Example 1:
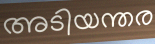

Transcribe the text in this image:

അടിയന്തര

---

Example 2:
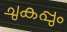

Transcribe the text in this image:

ചുകപ്പും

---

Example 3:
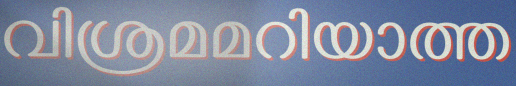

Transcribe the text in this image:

വിശ്രമമറിയാത്ത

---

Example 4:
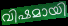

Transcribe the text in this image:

വിഷമായി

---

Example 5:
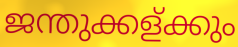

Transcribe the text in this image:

ജന്തുക്കള്ക്കും